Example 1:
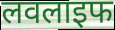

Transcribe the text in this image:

लवलाइफ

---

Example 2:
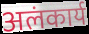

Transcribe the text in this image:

अलंकार्य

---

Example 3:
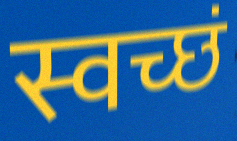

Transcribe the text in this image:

स्वच्छं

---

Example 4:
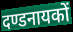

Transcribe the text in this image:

दण्डनायकों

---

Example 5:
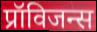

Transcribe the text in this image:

प्रॉविजन्स